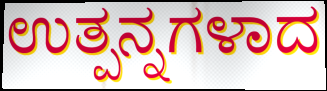
ಉತ್ಪನ್ನಗಳಾದ